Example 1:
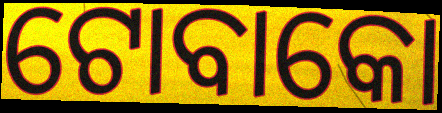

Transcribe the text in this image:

ଟୋବାକୋ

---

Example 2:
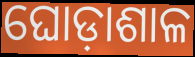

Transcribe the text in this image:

ଘୋଡ଼ାଶାଳ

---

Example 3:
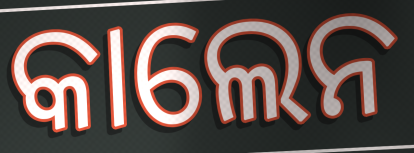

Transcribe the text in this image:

କାଲେନ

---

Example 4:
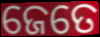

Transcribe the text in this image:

ଜେତେ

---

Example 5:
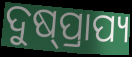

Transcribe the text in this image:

ଦୁଷ୍‌ପ୍ରାପ୍ୟ